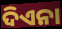
ଦିଏନା